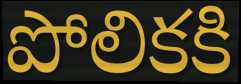
పోలికకి